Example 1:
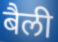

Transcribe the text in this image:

बैली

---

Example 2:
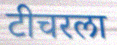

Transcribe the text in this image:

टीचरला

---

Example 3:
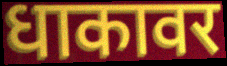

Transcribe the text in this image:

धाकावर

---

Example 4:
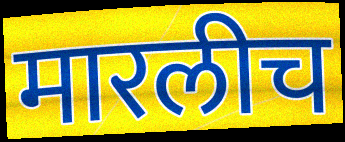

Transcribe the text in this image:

मारलीच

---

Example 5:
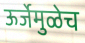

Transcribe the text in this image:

ऊर्जेमुळेच